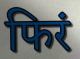
फिरं